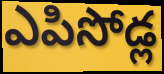
ఎపిసోడ్ల